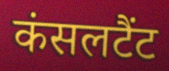
कंसलटैंट